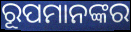
ରୂପମାନଙ୍କର